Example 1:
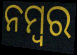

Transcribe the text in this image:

ନମ୍ବର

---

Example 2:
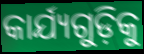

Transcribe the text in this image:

କାର୍ଯ୍ୟଗୁଡ଼ିକୁ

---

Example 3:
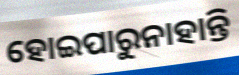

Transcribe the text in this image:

ହୋଇପାରୁନାହାନ୍ତି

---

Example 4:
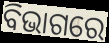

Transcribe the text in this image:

ବିଭାଗରେ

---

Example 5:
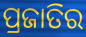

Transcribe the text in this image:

ପ୍ରଜାତିର